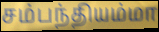
சம்பந்தியம்மா